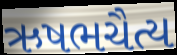
ઋષભચૈત્ય